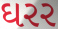
ઘરર